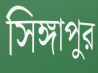
সিঙ্গাপুর